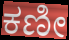
ಕಣೀ